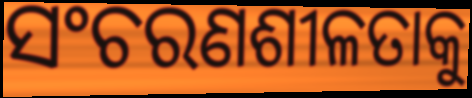
ସଂଚରଣଶୀଳତାକୁ